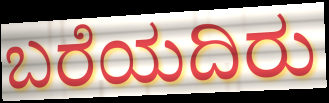
ಬರೆಯದಿರು